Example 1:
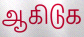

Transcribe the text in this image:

ஆகிடுக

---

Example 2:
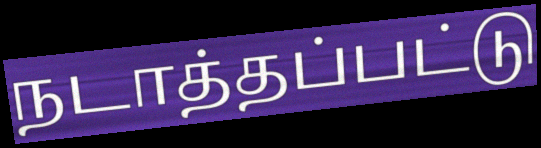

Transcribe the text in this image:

நடாத்தப்பட்டு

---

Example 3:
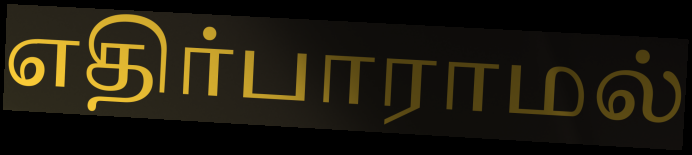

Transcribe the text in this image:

எதிர்பாராமல்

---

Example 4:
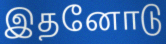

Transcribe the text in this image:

இதனோடு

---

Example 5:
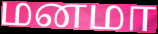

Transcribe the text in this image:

மனமா